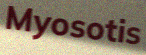
Myosotis